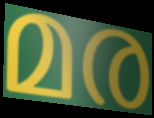
മര